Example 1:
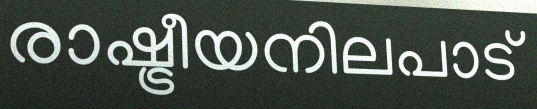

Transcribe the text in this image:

രാഷ്ട്രീയനിലപാട്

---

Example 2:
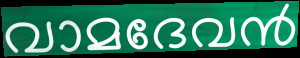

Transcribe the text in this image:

വാമദേവൻ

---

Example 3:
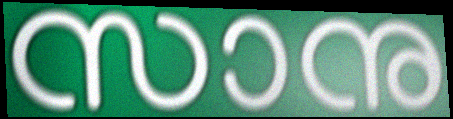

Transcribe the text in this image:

സാനു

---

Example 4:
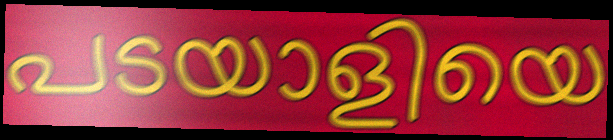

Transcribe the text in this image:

പടയാളിയെ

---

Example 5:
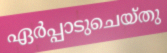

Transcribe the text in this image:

ഏർപ്പാടുചെയ്തു